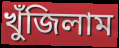
খুঁজিলাম